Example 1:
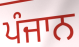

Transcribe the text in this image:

ਪੰਜਾਨ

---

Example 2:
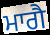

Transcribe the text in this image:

ਮਾਗੈ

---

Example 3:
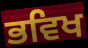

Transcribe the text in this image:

ਭਵਿਖ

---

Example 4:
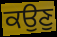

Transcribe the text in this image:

ਕਉਣੁ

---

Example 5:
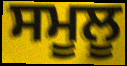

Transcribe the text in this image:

ਸਮੂਲੂ